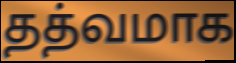
தத்வமாக